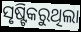
ସୃଷ୍ଟିକରୁଥିଲା